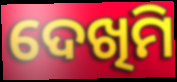
ଦେଖିମି